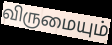
விருமையும்